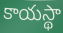
కాయస్థా